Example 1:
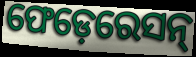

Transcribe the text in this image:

ଫେଡ଼େରେସନ୍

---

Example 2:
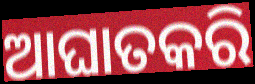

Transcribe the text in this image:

ଆଘାତକରି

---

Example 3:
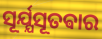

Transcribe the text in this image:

ସୂର୍ଯ୍ଯସୂତଵାର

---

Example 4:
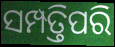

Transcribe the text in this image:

ସମ୍ପତ୍ତିପରି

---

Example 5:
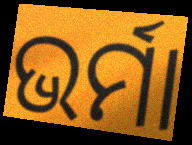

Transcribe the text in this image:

ଭର୍ମା